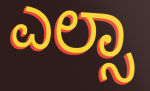
ಎಲ್ಸಾ